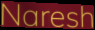
Naresh